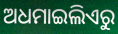
ଅଧମାଇଲିଏରୁ